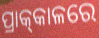
ପ୍ରାକ୍‌କାଳରେ